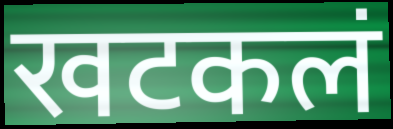
खटकलं